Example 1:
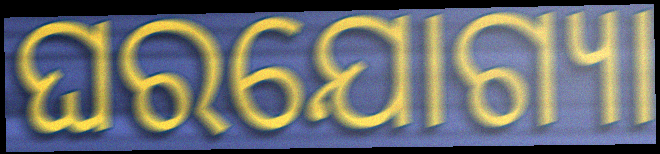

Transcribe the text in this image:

ଘରଯୋଗ୍ୟା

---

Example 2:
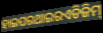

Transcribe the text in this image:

ହାଇପରଥାଇରଏଡିଜିମ୍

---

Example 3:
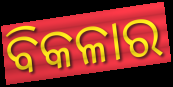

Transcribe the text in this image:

ବିକଳାର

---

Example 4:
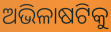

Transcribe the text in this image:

ଅଭିଳାଷଟିକୁ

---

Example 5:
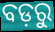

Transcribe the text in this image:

ବଡ଼ରୁ